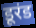
डूरंड